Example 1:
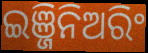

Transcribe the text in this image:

ଇଞ୍ଜିନିଅରିଂ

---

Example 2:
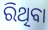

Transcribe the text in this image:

ରିଥିବା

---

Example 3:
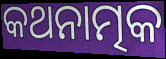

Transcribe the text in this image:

କଥନାତ୍ମକ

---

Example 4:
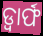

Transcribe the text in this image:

ଡ୍ୱାର୍ଫ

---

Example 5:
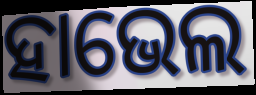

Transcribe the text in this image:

ହାଭେଲ